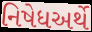
નિષેધઅર્થે